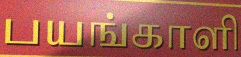
பயங்காளி